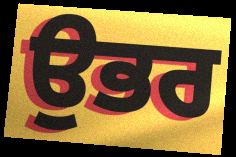
ਉਭਰ